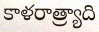
కాళరాత్ర్యాది